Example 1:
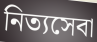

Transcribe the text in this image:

নিত্যসেবা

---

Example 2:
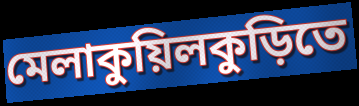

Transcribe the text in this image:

মেলাকুয়িলকুড়িতে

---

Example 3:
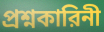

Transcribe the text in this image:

প্রশ্নকারিনী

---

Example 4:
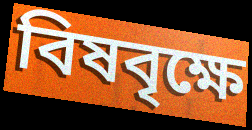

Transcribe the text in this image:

বিষবৃক্ষে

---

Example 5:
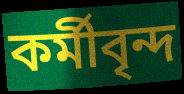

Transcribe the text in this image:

কর্মীবৃন্দ